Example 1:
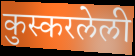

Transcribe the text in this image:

कुस्करलेली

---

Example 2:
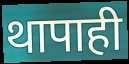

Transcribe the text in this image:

थापाही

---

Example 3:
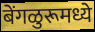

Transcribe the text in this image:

बेंगळुरूमध्ये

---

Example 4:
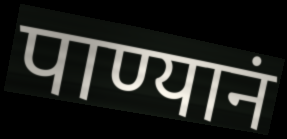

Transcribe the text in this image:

पाण्यानं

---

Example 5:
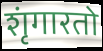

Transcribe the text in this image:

शृंगारतो